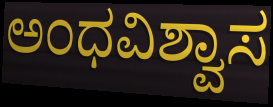
ಅಂಧವಿಶ್ವಾಸ